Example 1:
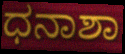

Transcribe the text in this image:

ಧನಾಶಾ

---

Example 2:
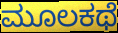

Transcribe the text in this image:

ಮೂಲಕಥೆ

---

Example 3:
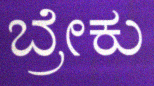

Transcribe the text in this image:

ಬ್ರೇಕು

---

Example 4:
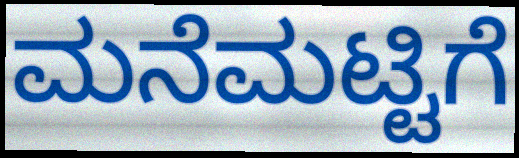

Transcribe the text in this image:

ಮನೆಮಟ್ಟಿಗೆ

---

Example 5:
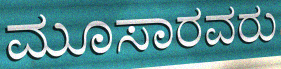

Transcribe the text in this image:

ಮೂಸಾರವರು